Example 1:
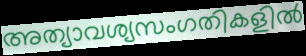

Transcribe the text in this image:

അത്യാവശ്യസംഗതികളിൽ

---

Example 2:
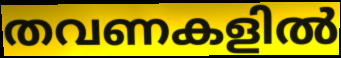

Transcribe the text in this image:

തവണകളിൽ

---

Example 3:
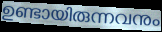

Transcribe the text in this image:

ഉണ്ടായിരുന്നവനും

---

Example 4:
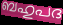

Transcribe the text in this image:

ബഹുപദ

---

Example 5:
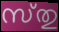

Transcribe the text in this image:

സ്‌തു